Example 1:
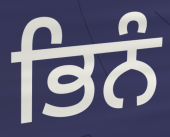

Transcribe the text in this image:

ਭਿਨੰ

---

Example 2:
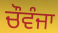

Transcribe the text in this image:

ਚੌਵੰਜਾ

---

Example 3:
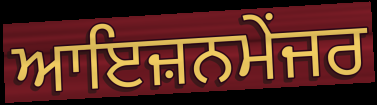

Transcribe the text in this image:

ਆਇਜ਼ਨਮੇਂਜਰ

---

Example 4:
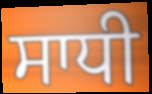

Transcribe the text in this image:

ਸਾਧੀ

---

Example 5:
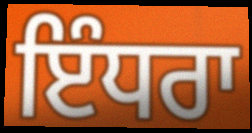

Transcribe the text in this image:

ਇੰਧਰਾ